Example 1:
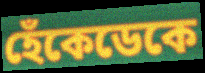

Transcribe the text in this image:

হেঁকেডেকে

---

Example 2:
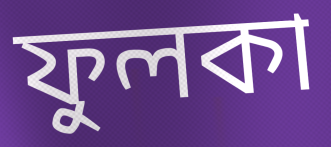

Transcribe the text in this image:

ফুলকা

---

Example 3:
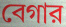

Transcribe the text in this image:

বেগার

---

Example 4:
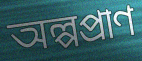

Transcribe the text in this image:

অল্পপ্রাণ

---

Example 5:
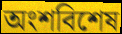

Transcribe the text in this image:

অংশবিশেষ